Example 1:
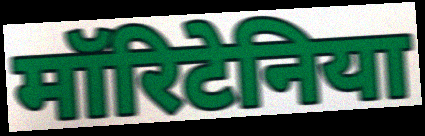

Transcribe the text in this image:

मॉरिटेनिया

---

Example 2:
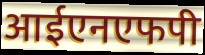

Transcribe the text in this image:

आईएनएफपी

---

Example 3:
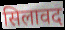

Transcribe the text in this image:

सिलावद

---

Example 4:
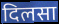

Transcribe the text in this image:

दिलसा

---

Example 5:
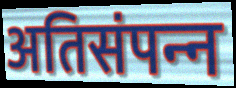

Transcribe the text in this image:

अतिसंपन्न